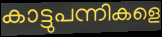
കാട്ടുപന്നികളെ